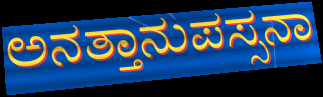
ಅನತ್ತಾನುಪಸ್ಸನಾ